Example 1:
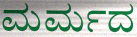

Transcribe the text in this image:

ಮರ್ಮದ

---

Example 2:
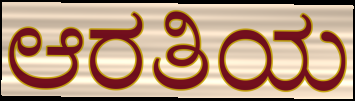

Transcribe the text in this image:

ಆರತಿಯ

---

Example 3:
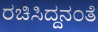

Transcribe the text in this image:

ರಚಿಸಿದ್ದನಂತೆ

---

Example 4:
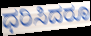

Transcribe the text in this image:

ಧರಿಸಿದರೂ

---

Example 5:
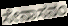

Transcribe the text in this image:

ಸೇನಾಸನಂ